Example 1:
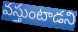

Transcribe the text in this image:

వస్తుంటాడని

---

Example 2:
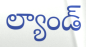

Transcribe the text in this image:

ల్యాండ్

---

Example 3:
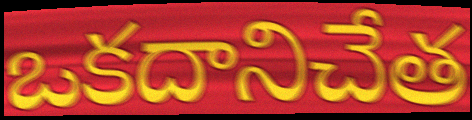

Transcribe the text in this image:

ఒకదానిచేత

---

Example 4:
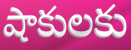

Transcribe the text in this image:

షాకులకు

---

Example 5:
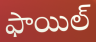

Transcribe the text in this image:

ఫాయిల్